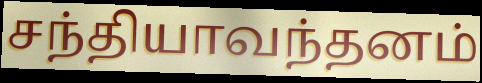
சந்தியாவந்தனம்